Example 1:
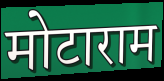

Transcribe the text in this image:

मोटाराम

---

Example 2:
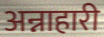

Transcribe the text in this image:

अन्नाहारी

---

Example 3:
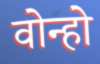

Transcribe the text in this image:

वोन्हो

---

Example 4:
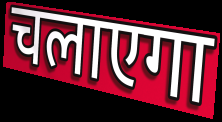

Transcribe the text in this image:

चलाएगा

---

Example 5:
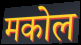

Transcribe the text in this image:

मकोल